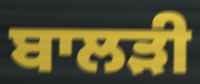
ਬਾਲੜੀ